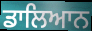
ਡਾਲਿਆਨ